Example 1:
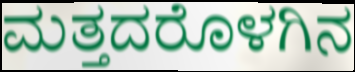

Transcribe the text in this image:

ಮತ್ತದರೊಳಗಿನ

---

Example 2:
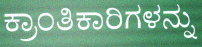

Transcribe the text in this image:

ಕ್ರಾಂತಿಕಾರಿಗಳನ್ನು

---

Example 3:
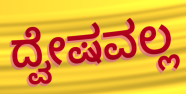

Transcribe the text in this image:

ದ್ವೇಷವಲ್ಲ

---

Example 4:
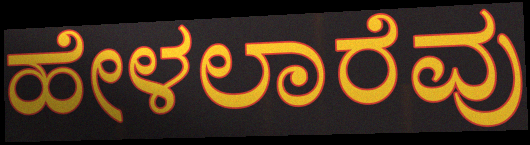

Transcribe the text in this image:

ಹೇಳಲಾರೆವು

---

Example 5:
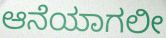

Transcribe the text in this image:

ಆನೆಯಾಗಲೀ